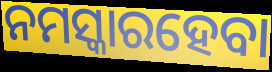
ନମସ୍କାରହେବା